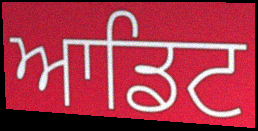
ਆਡਿਟ